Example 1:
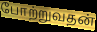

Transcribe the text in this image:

போற்றுவதன்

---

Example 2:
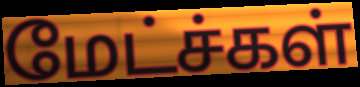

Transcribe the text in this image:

மேட்ச்கள்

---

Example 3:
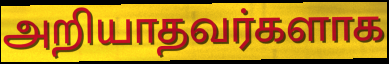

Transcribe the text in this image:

அறியாதவர்களாக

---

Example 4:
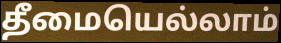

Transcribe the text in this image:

தீமையெல்லாம்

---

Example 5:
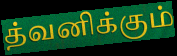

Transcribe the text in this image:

த்வனிக்கும்